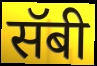
सॅबी